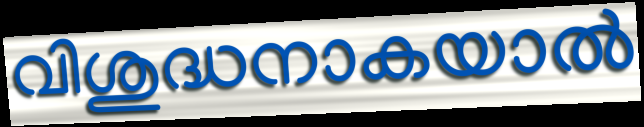
വിശുദ്ധനാകയാൽ